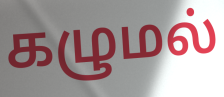
கழுமல்